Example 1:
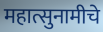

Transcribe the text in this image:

महात्सुनामीचे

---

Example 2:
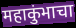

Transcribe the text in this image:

महाकुंभाचा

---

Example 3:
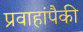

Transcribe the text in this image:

प्रवाहांपैकी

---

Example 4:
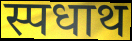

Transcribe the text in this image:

स्पधाथ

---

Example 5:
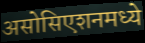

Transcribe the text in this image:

असोसिएशनमध्ये